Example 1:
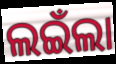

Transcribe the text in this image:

ଲଇଁଲା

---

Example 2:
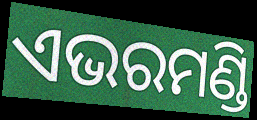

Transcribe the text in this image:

ଏଭରମଣ୍ଡି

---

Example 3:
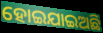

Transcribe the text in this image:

ହୋଇଯାଇଅଛି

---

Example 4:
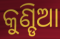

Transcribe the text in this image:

କୁଣ୍ଡିଆ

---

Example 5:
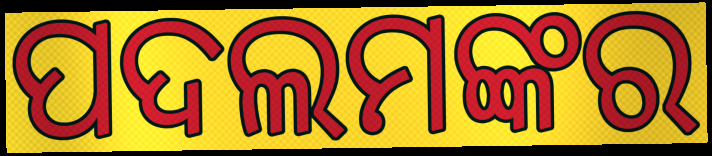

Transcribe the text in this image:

ପଦଲମଙ୍କର